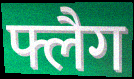
फ्लैग